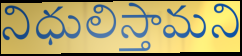
నిధులిస్తామని